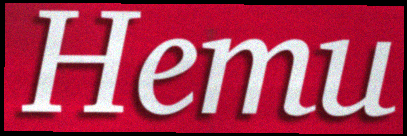
Hemu